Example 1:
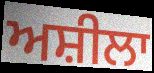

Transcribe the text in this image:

ਅਸ਼ੀਲਾ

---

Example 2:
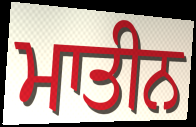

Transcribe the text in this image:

ਮਾਤੀਨ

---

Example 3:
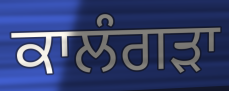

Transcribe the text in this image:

ਕਾਲੰਗੜਾ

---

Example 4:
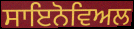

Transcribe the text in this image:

ਸਾਇਨੋਵਿਅਲ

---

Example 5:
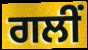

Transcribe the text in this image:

ਗਲੀਂ